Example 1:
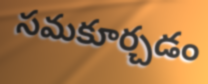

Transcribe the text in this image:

సమకూర్చడం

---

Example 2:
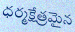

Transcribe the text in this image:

ధర్మక్షేత్రమైన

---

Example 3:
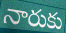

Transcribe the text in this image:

నారుకు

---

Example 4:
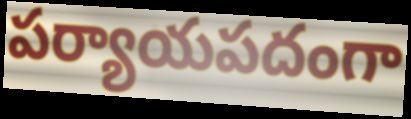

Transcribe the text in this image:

పర్యాయపదంగా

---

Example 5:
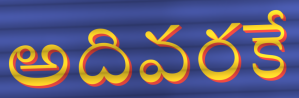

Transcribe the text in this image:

అదివరకే